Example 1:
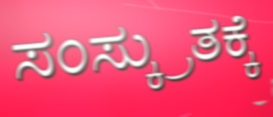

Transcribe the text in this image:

ಸಂಸ್ಕ್ರುತಕ್ಕೆ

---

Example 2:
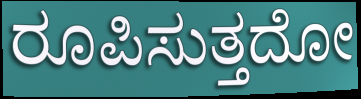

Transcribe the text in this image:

ರೂಪಿಸುತ್ತದೋ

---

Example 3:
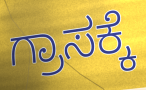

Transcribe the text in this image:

ಗ್ರಾಸಕ್ಕೆ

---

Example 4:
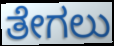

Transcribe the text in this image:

ತೇಗಲು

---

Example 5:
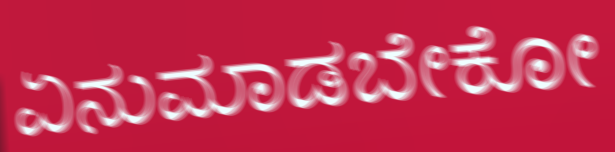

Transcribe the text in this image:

ಏನುಮಾಡಬೇಕೋ